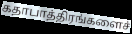
கதாபாத்திரங்களைச்